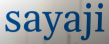
sayaji